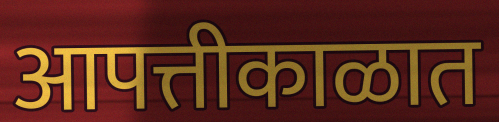
आपत्तीकाळात